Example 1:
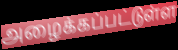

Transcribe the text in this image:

அழைக்கப்பட்டுள்ள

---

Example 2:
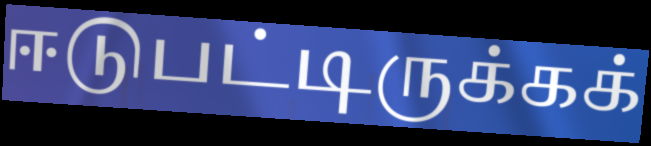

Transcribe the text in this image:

ஈடுபட்டிருக்கக்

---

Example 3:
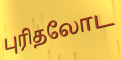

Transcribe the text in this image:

புரிதலோட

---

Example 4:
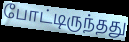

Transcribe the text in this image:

போட்டிருந்தது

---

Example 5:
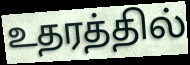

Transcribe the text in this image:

உதரத்தில்